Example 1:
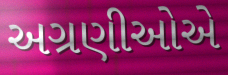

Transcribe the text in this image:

અગ્રણીઓએ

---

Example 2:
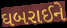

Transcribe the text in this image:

ઘબરાઈને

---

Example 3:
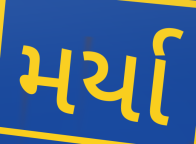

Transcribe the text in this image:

મર્યા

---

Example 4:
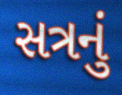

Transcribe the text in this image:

સત્રનું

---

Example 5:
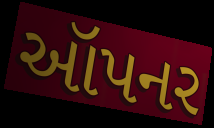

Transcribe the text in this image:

ઑપનર